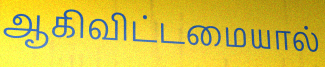
ஆகிவிட்டமையால்